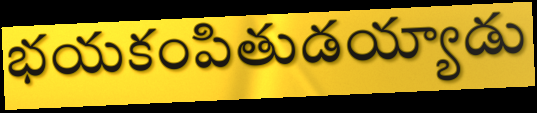
భయకంపితుడయ్యాడు